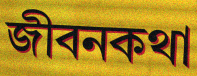
জীবনকথা